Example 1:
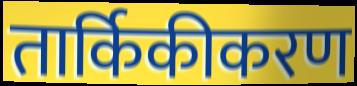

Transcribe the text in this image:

तार्किकीकरण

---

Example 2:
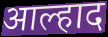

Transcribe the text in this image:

आल्हाद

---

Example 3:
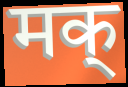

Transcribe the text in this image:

मक्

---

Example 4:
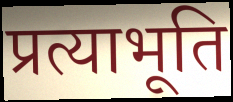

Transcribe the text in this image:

प्रत्याभूति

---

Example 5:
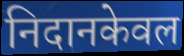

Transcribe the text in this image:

निदानकेवल